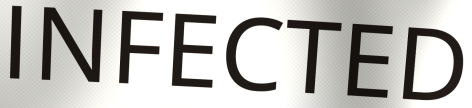
INFECTED